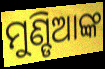
ମୁଣ୍ଡିଆଙ୍କ